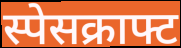
स्पेसक्राफ्ट